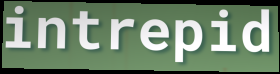
intrepid